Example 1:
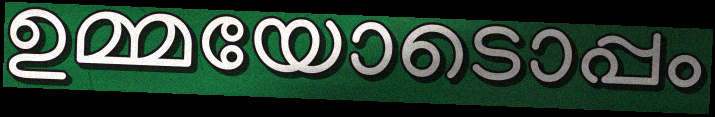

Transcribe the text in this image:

ഉമ്മയോടൊപ്പം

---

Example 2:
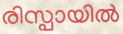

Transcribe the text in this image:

രിസ്പായിൽ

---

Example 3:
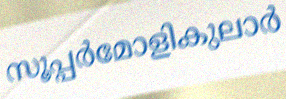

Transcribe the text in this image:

സൂപ്പർമോളികുലാർ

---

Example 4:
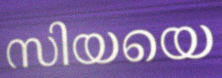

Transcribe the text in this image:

സിയയെ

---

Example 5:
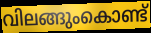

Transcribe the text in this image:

വിലങ്ങുംകൊണ്ട്